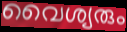
വൈശ്യരും